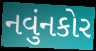
નવુંનકોર